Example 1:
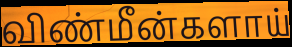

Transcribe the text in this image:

விண்மீன்களாய்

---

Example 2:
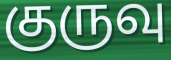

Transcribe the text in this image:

குருவு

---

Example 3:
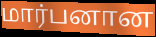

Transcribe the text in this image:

மார்பனான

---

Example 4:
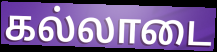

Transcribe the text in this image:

கல்லாடை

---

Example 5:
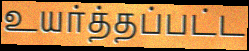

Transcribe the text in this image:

உயர்த்தப்பட்ட